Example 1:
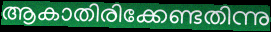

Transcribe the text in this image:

ആകാതിരിക്കേണ്ടതിന്നു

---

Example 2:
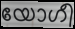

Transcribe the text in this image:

യോഗീ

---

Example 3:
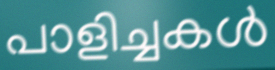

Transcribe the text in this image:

പാളിച്ചകൾ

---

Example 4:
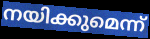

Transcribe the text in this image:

നയിക്കുമെന്ന്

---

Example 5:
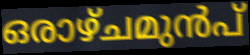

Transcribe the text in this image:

ഒരാഴ്ചമുൻപ്